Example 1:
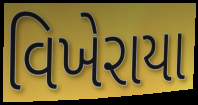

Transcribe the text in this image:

વિખેરાયા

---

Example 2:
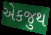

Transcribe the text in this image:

એકજુથ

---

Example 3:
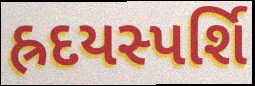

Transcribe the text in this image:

હ્રદયસ્પર્શિ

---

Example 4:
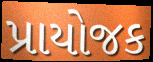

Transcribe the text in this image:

પ્રાયોજક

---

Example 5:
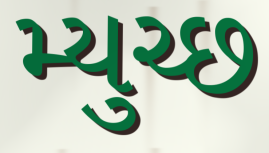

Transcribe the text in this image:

મ્યુચ્છ